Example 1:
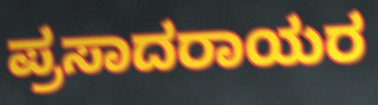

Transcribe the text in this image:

ಪ್ರಸಾದರಾಯರ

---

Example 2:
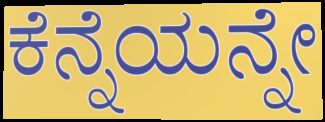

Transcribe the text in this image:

ಕೆನ್ನೆಯನ್ನೇ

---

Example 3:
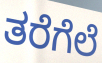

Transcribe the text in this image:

ತರೆಗೆಲೆ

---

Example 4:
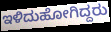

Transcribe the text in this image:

ಇಳಿದುಹೋಗಿದ್ದರು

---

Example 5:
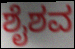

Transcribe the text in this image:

ಶೈಶವ